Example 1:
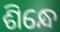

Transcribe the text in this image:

ଶିନ୍ଧେ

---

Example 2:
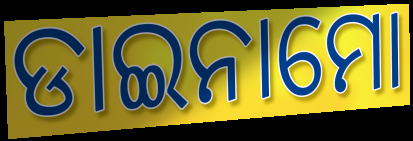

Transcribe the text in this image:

ଡାଇନାମୋ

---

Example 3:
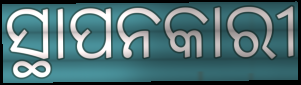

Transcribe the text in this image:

ସ୍ଥାପନକାରୀ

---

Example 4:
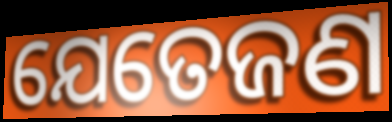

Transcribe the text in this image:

ଯେତେଜଣ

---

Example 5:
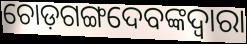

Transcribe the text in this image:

ଚୋଡ଼ଗଙ୍ଗଦେବଙ୍କଦ୍ୱାରା